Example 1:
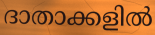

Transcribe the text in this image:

ദാതാക്കളിൽ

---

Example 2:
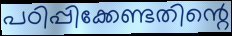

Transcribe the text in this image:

പഠിപ്പിക്കേണ്ടതിന്റെ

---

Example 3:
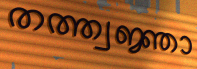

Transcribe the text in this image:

തത്ത്വജ്ഞാ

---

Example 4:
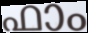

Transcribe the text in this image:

ഫാം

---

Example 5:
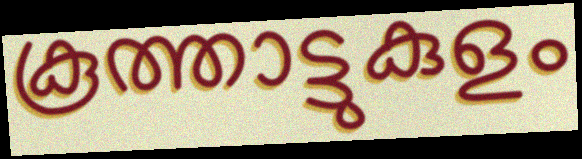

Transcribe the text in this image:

കൂത്താട്ടുകുളം